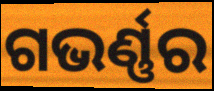
ଗଭର୍ଣ୍ଣର